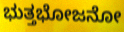
ಭುತ್ತಭೋಜನೋ